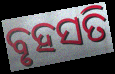
ବୃହସତି